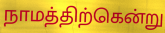
நாமத்திற்கென்று